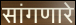
सांगणारे